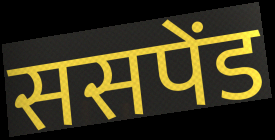
ससपेंड